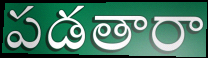
పడతారా